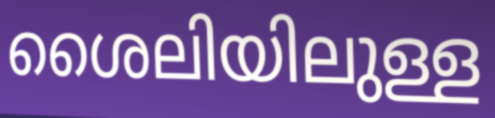
ശൈലിയിലുള്ള